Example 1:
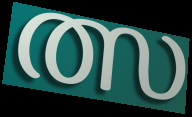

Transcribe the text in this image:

ത്സ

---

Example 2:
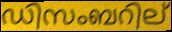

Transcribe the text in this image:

ഡിസംബറില്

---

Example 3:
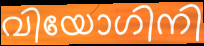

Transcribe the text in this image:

വിയോഗിനി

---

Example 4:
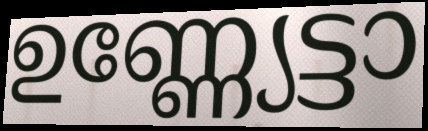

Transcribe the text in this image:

ഉണ്ണ്യേട്ടാ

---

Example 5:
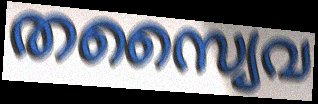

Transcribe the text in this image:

തസ്യൈവ